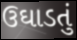
ઉઘાડતું